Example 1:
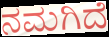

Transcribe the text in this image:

ನಮಗಿದೆ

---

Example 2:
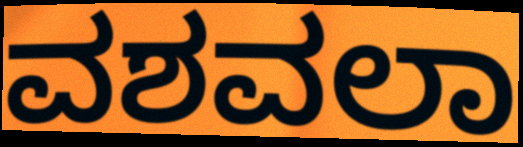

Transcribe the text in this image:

ವಶವಲಾ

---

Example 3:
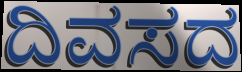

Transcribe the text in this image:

ದಿವಸದ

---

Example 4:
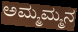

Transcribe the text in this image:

ಅಮ್ಮಮ್ಮನ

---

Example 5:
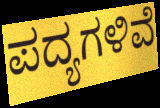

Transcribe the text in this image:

ಪದ್ಯಗಳಿವೆ